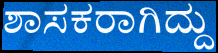
ಶಾಸಕರಾಗಿದ್ದು